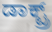
ಡಾಕ್ಟ್ರ್